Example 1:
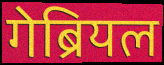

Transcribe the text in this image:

गेब्रियल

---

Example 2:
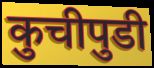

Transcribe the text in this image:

कुचीपुडी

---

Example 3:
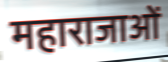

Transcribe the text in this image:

महाराजाओं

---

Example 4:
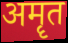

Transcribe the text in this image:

अमॄत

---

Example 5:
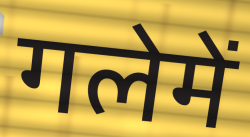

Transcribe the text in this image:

गलेमें